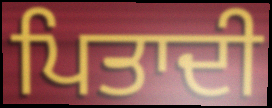
ਪਿਤਾਦੀ